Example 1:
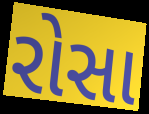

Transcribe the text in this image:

રોસા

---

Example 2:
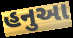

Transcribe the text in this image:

હનુઆ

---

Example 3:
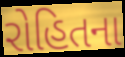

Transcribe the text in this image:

રોહિતના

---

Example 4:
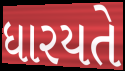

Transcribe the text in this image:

ધારયતે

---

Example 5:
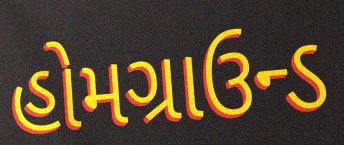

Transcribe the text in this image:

હોમગ્રાઉન્ડ